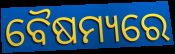
ବୈଷମ୍ୟରେ